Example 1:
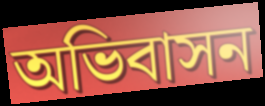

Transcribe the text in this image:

অভিবাসন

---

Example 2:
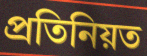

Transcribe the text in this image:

প্ৰতিনিয়ত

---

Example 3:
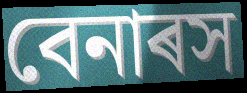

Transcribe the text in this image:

বেনাৰস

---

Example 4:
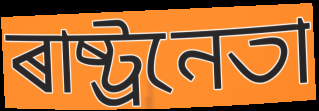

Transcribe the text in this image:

ৰাষ্ট্ৰনেতা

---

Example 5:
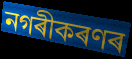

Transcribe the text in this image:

নগৰীকৰণৰ